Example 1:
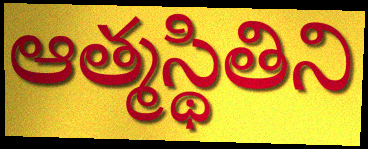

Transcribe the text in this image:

ఆత్మస్థితిని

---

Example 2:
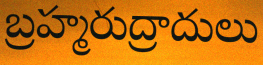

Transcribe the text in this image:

బ్రహ్మరుద్రాదులు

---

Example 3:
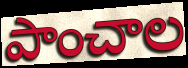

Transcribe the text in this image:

పాంచాల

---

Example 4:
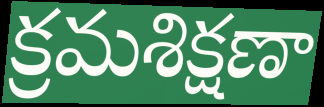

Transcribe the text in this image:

క్రమశిక్షణా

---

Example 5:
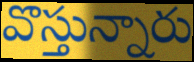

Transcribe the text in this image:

వొస్తున్నారు